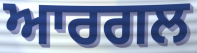
ਆਰਗਲ